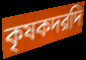
কৃষকদরদি